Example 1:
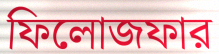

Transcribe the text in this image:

ফিলোজফার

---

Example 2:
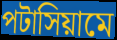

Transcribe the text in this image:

পটাসিয়ামে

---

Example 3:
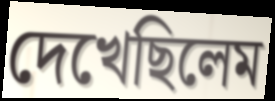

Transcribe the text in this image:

দেখেছিলেম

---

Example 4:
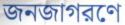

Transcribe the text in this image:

জনজাগরণে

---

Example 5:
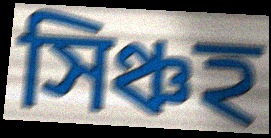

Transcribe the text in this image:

সিঞ্চহ